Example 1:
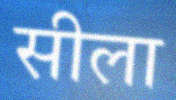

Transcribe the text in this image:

सीला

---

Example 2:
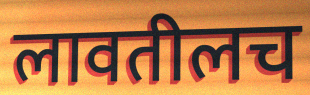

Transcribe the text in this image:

लावतीलच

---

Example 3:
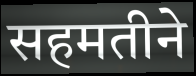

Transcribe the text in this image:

सहमतीने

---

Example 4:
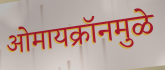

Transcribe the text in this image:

ओमायक्रॉनमुळे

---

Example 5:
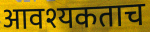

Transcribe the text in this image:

आवश्यकताच